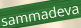
sammadeva